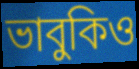
ভাবুকিও